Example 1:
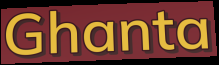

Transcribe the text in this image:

Ghanta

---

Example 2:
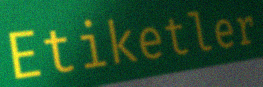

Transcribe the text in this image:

Etiketler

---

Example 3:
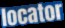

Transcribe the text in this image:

locator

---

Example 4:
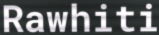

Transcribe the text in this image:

Rawhiti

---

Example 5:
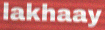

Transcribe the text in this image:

lakhaay